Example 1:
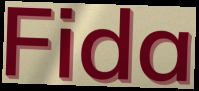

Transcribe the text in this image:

Fida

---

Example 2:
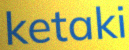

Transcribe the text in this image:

ketaki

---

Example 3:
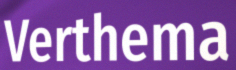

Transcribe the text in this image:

Verthema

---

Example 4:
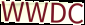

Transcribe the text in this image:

WWDC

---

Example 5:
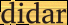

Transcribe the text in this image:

didar